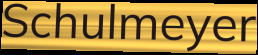
Schulmeyer